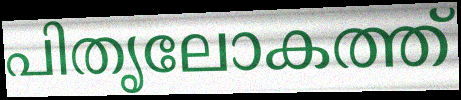
പിതൃലോകത്ത്